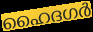
ഹൈദഗർ